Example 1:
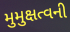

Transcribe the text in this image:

મુમુક્ષત્વની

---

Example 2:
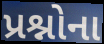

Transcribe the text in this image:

પ્રશ્નોના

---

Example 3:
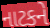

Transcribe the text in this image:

નાટકને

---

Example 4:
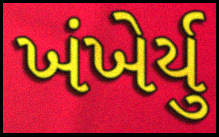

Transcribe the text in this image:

ખંખેર્યુ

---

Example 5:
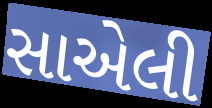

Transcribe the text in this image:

સાએલી